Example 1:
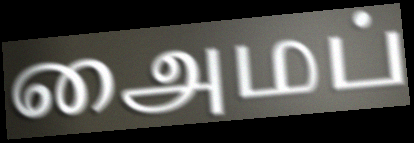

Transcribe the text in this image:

அைமப்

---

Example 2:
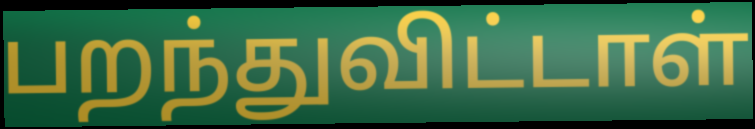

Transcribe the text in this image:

பறந்துவிட்டாள்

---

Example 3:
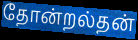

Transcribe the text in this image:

தோன்றல்தன்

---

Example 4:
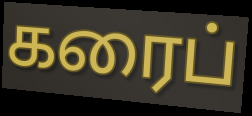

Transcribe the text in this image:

கரைப்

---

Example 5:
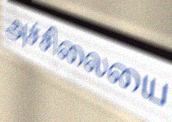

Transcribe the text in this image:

அச்சிலையை